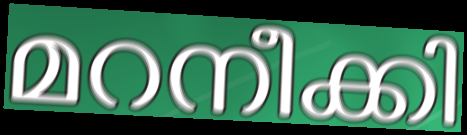
മറനീക്കി